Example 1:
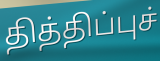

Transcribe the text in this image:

தித்திப்புச்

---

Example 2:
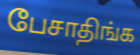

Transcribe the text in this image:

பேசாதிங்க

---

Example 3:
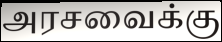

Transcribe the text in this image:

அரசவைக்கு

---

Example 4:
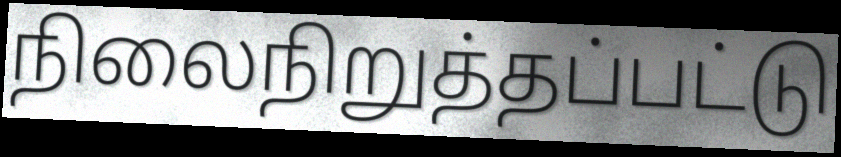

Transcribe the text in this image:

நிலைநிறுத்தப்பட்டு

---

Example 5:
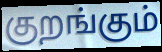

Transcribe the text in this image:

குறங்கும்